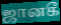
ஜானகீ